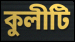
কুলীটি